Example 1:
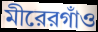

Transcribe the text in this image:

মীরেরগাঁও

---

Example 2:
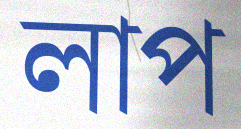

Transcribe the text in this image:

লাপ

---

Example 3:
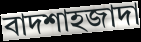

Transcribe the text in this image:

বাদশাহজাদা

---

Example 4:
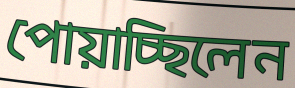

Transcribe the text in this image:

পোয়াচ্ছিলেন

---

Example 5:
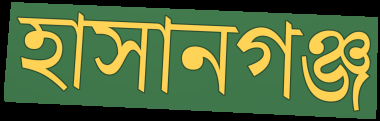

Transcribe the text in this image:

হাসানগঞ্জ